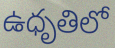
ఉధృతిలో